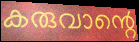
കരുവാന്റെ